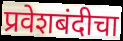
प्रवेशबंदीचा